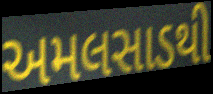
અમલસાડથી